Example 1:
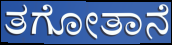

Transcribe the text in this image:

ತಗೋತಾನೆ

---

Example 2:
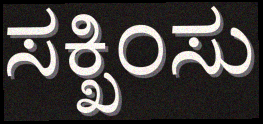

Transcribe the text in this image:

ಸಕ್ಖಿಂಸು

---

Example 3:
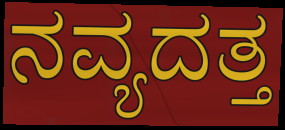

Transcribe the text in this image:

ನವ್ಯದತ್ತ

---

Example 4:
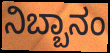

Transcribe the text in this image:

ನಿಬ್ಬಾನಂ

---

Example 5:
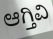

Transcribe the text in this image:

ಆಗ್ತಿವಿ